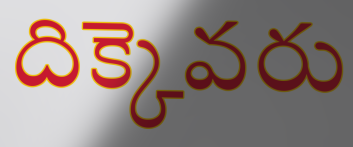
దిక్కెవరు